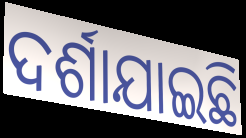
ଦର୍ଶାଯାଇଛି